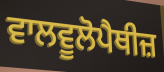
ਵਾਲਵੂਲੋਪੈਥੀਜ਼